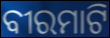
ବୀରମାଟି